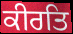
ਕੀਰਤਿ